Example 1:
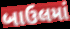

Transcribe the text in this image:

બાઉલમાં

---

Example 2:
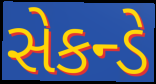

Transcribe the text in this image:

સેકન્ડે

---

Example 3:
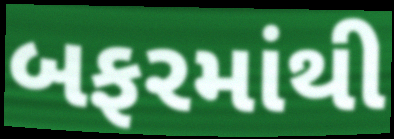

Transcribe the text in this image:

બફરમાંથી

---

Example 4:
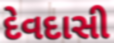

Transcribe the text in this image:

દેવદાસી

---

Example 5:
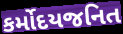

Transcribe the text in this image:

કર્મોદયજનિત